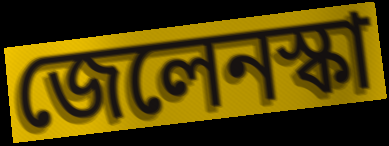
জেলেনস্কা